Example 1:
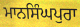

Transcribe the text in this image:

ਮਾਨਸਿੰਘਪੁਰਾ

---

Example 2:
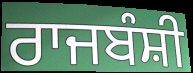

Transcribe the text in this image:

ਰਾਜਬੰਸ਼ੀ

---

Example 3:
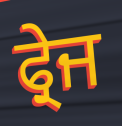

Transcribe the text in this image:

ਫ੍ਰੇਜ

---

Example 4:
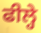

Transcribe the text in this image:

ਫੀਲ੍ਹੇ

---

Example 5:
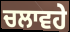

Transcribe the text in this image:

ਚਲਾਵਹੇ